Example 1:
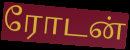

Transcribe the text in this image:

ரோடன்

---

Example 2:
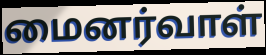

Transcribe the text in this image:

மைனர்வாள்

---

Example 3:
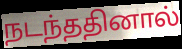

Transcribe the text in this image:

நடந்ததினால்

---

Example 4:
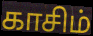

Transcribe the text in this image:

காசிம்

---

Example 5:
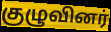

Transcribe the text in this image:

குழுவினர்